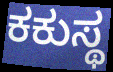
ಕಕುಸ್ಥ